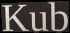
Kub